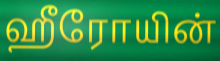
ஹீரோயின்